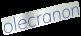
olecranon